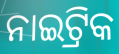
ନାଇଟ୍ରିକ